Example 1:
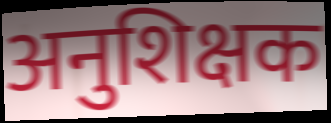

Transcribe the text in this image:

अनुशिक्षक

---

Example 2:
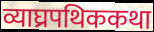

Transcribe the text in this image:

व्याघ्रपथिककथा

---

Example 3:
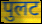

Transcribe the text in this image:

पुलट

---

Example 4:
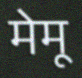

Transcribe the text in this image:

मेमू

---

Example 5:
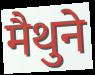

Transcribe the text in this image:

मैथुने